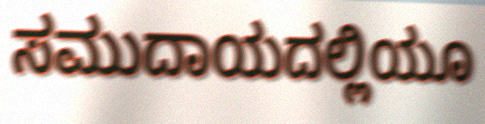
ಸಮುದಾಯದಲ್ಲಿಯೂ